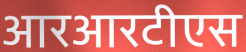
आरआरटीएस